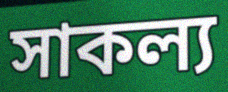
সাকল্য